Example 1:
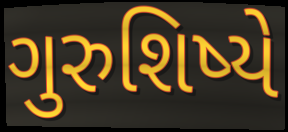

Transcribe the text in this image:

ગુરુશિષ્યે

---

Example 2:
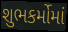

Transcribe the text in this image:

શુભકર્મોમાં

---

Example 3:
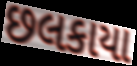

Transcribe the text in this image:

છલકાયા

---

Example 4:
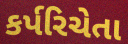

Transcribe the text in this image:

કર્પરિચેતા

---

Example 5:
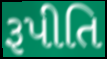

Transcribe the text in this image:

રૂપીતિ